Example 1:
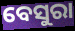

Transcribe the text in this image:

ବେସୁରା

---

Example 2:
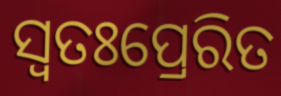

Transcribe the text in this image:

ସ୍ୱତଃପ୍ରେରିତ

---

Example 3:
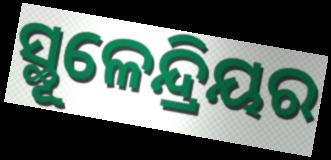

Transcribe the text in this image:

ସ୍ଥୂଳେନ୍ଦ୍ରିୟର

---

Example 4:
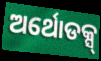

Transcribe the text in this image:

ଅର୍ଥୋଡକ୍ସ୍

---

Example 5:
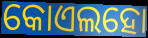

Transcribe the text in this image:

କୋଏଲହୋ